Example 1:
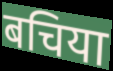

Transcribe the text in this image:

बचिया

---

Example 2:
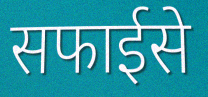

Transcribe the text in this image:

सफाईसे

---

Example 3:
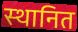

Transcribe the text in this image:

स्थानित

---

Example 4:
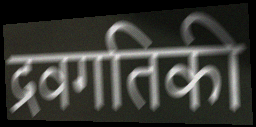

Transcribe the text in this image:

द्रवगतिकी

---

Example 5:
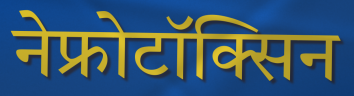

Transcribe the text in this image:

नेफ्रोटॉक्सिन